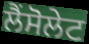
ਲੈਂਸੋਲੇਟ